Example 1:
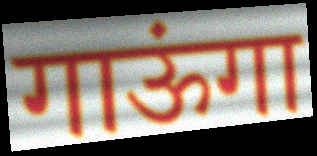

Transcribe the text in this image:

गाऊंगा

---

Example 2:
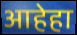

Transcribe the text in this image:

आहेहा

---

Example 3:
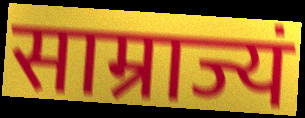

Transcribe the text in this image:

साम्राज्यं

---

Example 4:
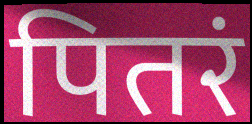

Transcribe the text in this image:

पितरं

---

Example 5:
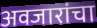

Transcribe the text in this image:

अवजारांचा